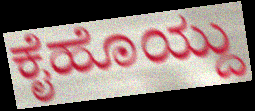
ಕೈಹೊಯ್ದು